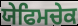
ਯੇਫਿਮਚੇਕ